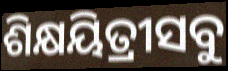
ଶିକ୍ଷୟିତ୍ରୀସବୁ